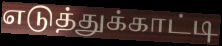
எடுத்துக்காட்டி